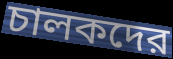
চালকদের